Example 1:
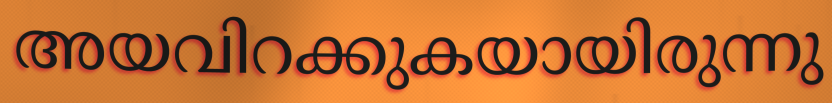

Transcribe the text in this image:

അയവിറക്കുകയായിരുന്നു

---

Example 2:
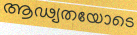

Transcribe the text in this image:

ആഢ്യതയോടെ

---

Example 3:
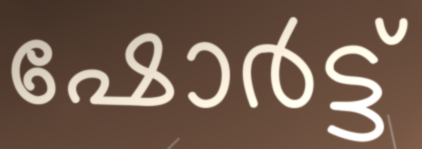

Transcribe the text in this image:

ഷോർട്ട്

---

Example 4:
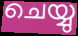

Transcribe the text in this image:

ചെയ്യു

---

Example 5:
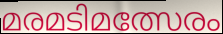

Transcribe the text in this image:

മരമടിമത്സേരം